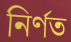
নির্ণত